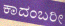
ಕಾದಂಬರೀ